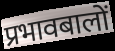
प्रभावबालों